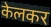
केलकर